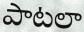
పాటలా